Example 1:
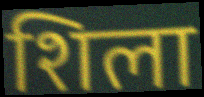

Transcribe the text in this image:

शिला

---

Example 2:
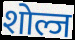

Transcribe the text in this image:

शोल्ज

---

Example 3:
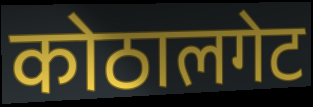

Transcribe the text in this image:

कोठालगेट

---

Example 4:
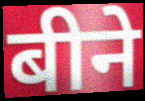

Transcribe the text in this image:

बीने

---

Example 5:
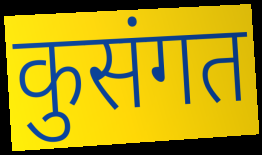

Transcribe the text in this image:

कुसंगत